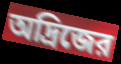
অদ্রিজের